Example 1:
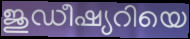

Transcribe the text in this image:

ജുഡീഷ്യറിയെ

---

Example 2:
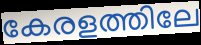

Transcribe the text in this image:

കേരളത്തിലേ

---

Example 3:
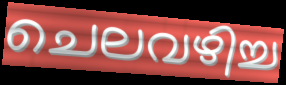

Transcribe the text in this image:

ചെലവഴിച്ച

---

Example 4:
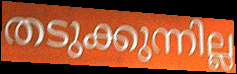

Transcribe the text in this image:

തടുക്കുന്നില്ല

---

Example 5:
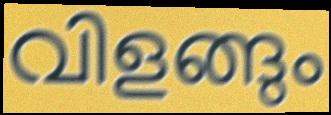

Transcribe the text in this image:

വിളങ്ങും